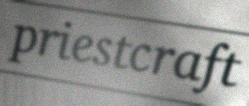
priestcraft